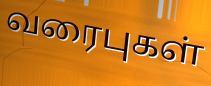
வரைபுகள்